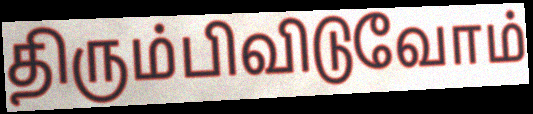
திரும்பிவிடுவோம்